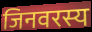
जिनवरस्य